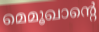
മെമൂഖാന്റെ